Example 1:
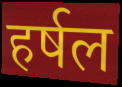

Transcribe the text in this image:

हर्षल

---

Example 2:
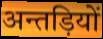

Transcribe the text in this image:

अन्तड़ियों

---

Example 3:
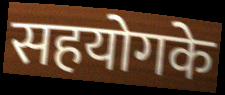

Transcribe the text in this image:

सहयोगके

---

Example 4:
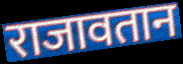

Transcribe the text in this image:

राजावतान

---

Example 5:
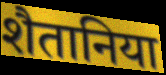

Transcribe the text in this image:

शैतानिया